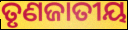
ତୃଣଜାତୀୟ